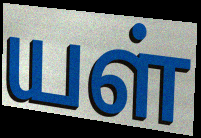
யள்